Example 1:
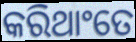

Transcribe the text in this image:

କରିଥାଂତେ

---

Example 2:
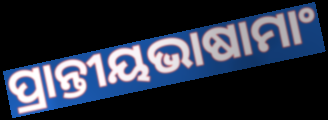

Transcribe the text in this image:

ପ୍ରାନ୍ତୀୟଭାଷାମାଂ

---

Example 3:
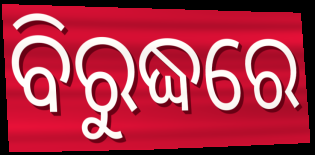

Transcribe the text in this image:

ବିରୁଦ୍ଧରେ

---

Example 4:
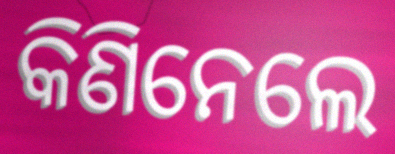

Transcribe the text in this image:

କିଣିନେଲେ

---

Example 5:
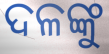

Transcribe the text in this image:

ଦଳଙ୍କୁ